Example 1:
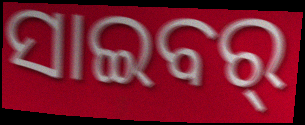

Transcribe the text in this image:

ସାଇବର୍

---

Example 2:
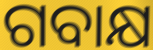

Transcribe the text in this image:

ଗବାକ୍ଷ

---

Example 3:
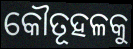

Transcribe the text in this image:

କୌତୂହଳକୁ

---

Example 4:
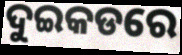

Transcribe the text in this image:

ଦୁଇକଡରେ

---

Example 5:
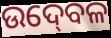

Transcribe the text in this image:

ଉଦ୍‍ବେଳ